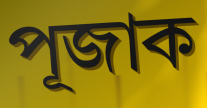
পূজাক